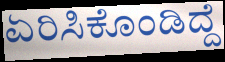
ಏರಿಸಿಕೊಂಡಿದ್ದೆ